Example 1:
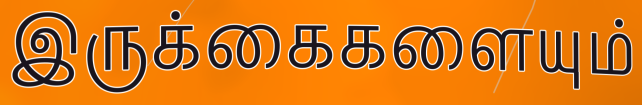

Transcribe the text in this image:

இருக்கைகளையும்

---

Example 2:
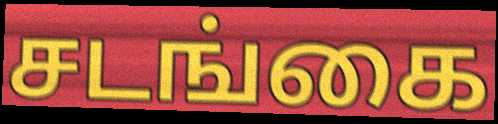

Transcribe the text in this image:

சடங்கை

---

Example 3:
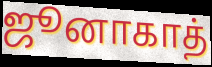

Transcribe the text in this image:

ஜூனாகாத்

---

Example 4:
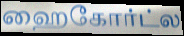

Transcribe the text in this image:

ஹைகோர்ட்ல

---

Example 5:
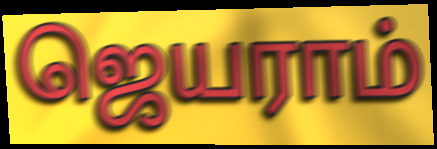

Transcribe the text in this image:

ஜெயராம்